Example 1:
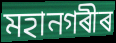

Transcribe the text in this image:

মহানগৰীৰ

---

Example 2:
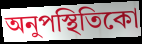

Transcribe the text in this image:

অনুপস্থিতিকো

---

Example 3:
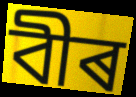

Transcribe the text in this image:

বীৰ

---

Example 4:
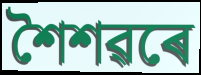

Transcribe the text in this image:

শৈশৱৰে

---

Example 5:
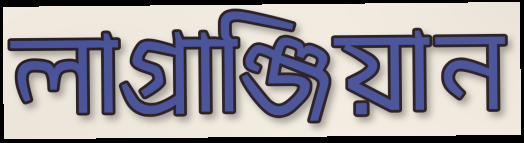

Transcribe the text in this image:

লাগ্ৰাঞ্জিয়ান